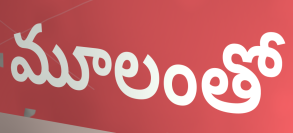
మూలంతో